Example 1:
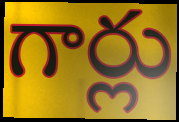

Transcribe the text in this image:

గార్లు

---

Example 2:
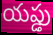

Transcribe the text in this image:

యప్డు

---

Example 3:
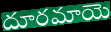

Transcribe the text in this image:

దూరమాయె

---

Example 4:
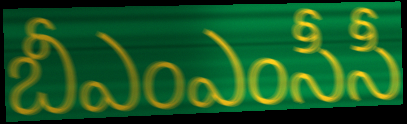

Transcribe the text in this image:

బీఎంఎంసీసీ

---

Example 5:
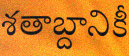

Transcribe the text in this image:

శతాబ్దానికీ